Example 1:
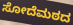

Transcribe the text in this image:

ಸೋದೆಮಠದ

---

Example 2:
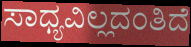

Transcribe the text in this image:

ಸಾಧ್ಯವಿಲ್ಲದಂತಿದೆ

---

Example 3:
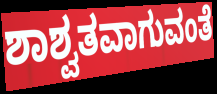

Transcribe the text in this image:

ಶಾಶ್ವತವಾಗುವಂತೆ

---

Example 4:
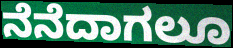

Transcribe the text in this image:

ನೆನೆದಾಗಲೂ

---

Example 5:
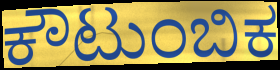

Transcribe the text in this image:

ಕೌಟುಂಬಿಕ